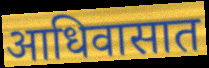
आधिवासात